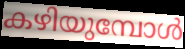
കഴിയുമ്പോൾ